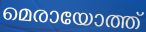
മെരായോത്ത്